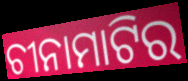
ଚୀନାମାଟିର